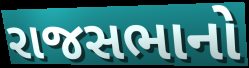
રાજસભાનો